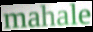
mahale